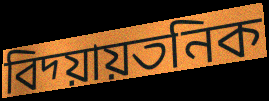
বিদ্য়ায়তনিক